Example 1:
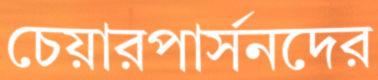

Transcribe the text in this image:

চেয়ারপার্সনদের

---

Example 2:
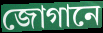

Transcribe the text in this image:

জোগানে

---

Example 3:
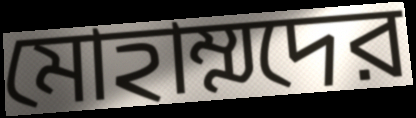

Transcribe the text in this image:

মোহাম্মদের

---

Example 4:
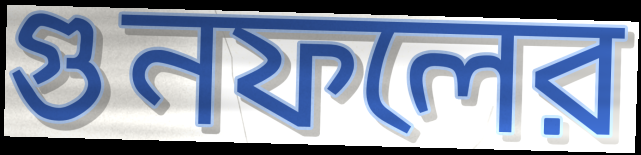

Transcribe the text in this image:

গুনফলের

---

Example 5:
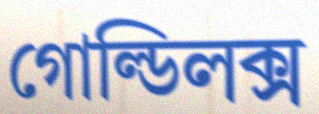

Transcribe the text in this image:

গোল্ডিলক্স